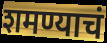
शमण्याचं